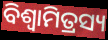
ବିଶ୍ଵାମିତ୍ରସ୍ୟ